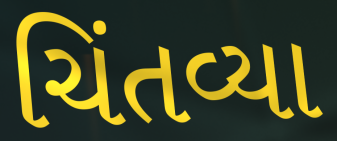
ચિંતવ્યા